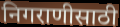
निगराणीसाठी